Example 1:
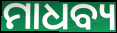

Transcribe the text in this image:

ମାଧବ୍ୟ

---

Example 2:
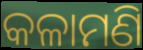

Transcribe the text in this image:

କଳାମଣି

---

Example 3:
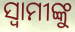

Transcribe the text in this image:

ସ୍ୱାମୀଙ୍କୁ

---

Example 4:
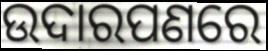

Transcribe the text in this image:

ଉଦାରପଣରେ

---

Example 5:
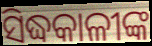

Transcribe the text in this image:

ସିଦ୍ଧକାଳୀଙ୍କ